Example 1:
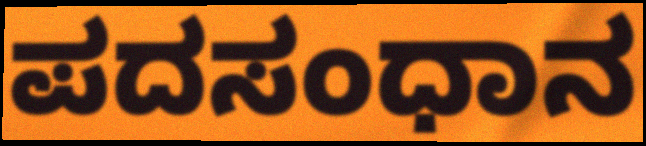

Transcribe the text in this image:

ಪದಸಂಧಾನ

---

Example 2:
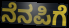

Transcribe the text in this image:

ನೆನಪಿಗೆ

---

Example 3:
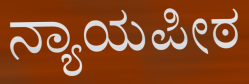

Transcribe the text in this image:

ನ್ಯಾಯಪೀಠ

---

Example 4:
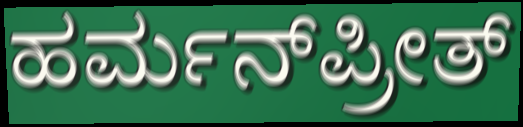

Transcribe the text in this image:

ಹರ್ಮನ್‌ಪ್ರೀತ್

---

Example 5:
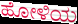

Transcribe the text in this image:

ಹೋಳಿಯ